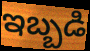
ఇబ్బడి